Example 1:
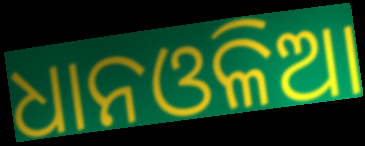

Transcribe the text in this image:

ଧାନଓଳିଆ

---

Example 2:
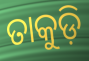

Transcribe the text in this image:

ତାକୁଡ଼ି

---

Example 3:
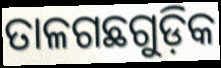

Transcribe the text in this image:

ତାଳଗଛଗୁଡ଼ିକ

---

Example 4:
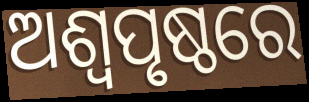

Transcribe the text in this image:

ଅଶ୍ୱପୃଷ୍ଠରେ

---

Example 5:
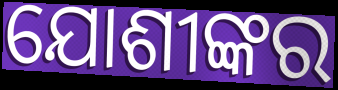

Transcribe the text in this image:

ଯୋଶୀଙ୍କର